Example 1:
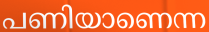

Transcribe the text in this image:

പണിയാണെന്ന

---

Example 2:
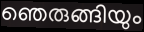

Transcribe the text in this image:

ഞെരുങ്ങിയും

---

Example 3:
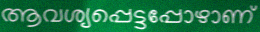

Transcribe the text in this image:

ആവശ്യപ്പെട്ടപ്പോഴാണ്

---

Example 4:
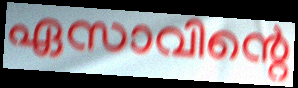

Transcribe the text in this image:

ഏസാവിന്റെ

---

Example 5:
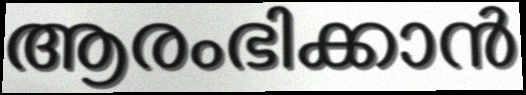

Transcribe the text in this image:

ആരംഭിക്കാൻ